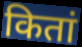
कितां